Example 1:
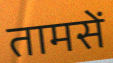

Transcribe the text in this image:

तामसें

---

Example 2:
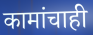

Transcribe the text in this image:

कामांचाही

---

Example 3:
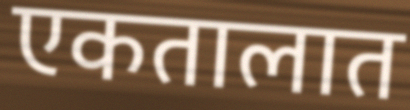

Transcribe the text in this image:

एकतालात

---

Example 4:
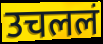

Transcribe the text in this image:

उचललं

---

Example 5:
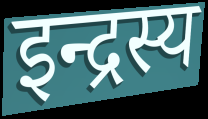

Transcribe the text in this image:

इन्द्रस्य